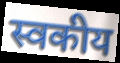
स्वकीय